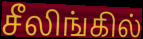
சீலிங்கில்